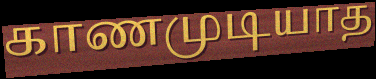
காணமுடியாத